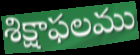
శిక్షాఫలము